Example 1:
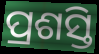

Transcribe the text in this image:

ପ୍ରଶସ୍ତି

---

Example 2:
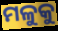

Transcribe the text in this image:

ମଳୁକୁ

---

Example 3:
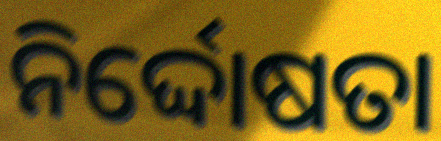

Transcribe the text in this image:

ନିର୍ଦ୍ଦୋଷତା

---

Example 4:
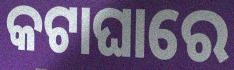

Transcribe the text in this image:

କଟାଘାରେ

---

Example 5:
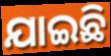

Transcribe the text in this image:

ଯାଇଛି